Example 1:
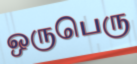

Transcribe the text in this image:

ஒருபெரு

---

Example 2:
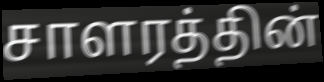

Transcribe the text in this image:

சாளரத்தின்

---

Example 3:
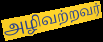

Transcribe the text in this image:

அழிவற்றவர்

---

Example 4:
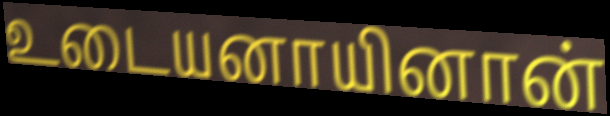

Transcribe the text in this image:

உடையனாயினான்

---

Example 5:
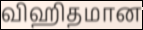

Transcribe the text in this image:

விஹிதமான